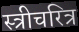
स्त्रीचरित्र